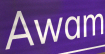
Awam